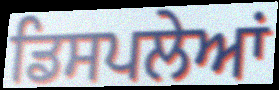
ਡਿਸਪਲੇਆਂ